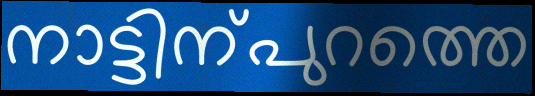
നാട്ടിന്പുറത്തെ